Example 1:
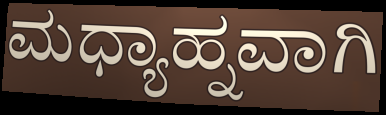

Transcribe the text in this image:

ಮಧ್ಯಾಹ್ನವಾಗಿ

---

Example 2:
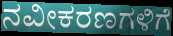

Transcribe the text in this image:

ನವೀಕರಣಗಳಿಗೆ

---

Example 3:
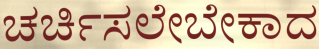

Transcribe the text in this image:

ಚರ್ಚಿಸಲೇಬೇಕಾದ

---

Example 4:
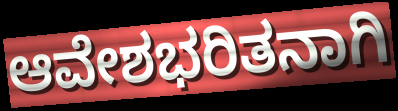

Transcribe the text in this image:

ಆವೇಶಭರಿತನಾಗಿ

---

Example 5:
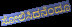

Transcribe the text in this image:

ಸೋಲಿಸಿದನೆಂದೂ